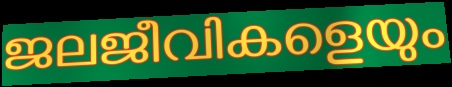
ജലജീവികളെയും